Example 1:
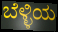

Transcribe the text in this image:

ಬೆಳ್ಳಿಯ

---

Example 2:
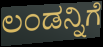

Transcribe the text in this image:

ಲಂಡನ್ನಿಗೆ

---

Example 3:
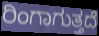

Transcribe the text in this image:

ರಿಂಗಾಗುತ್ತದೆ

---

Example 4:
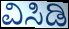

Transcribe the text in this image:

ವಿಸಿಡಿ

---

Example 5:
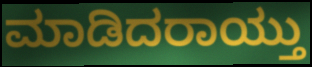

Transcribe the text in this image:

ಮಾಡಿದರಾಯ್ತು